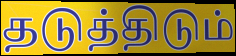
தடுத்திடும்